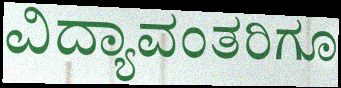
ವಿದ್ಯಾವಂತರಿಗೂ